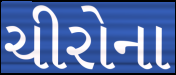
ચીરોના